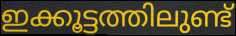
ഇക്കൂട്ടത്തിലുണ്ട്